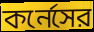
কর্নেসের